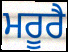
ਮਰੂਰੈ